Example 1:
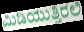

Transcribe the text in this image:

ಮಿಡಿಯುತ್ತಿರಲಿ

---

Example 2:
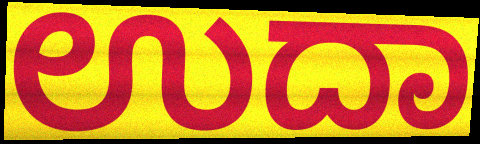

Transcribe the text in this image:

ಉದಾ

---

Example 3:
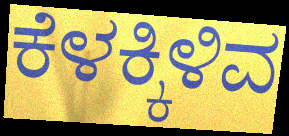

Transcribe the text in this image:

ಕೆಳಕ್ಕಿಳಿವ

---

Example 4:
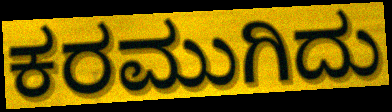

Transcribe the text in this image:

ಕರಮುಗಿದು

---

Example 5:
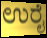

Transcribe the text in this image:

ಉರೈ